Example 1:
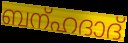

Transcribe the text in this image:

ബന്ഹദാദ്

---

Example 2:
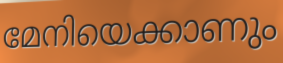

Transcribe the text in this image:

മേനിയെക്കാണും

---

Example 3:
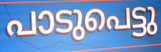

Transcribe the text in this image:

പാടുപെട്ടു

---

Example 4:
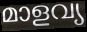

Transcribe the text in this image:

മാളവ്യ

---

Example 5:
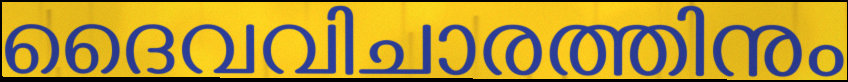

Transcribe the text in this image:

ദൈവവിചാരത്തിനും